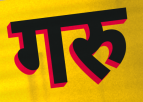
गरु